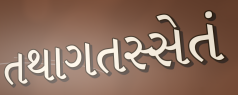
તથાગતસ્સેતં